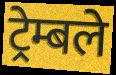
ट्रेम्बले